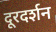
दूरदर्शन